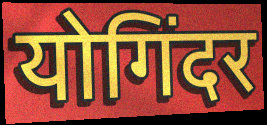
योगिंदर